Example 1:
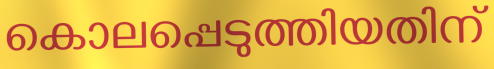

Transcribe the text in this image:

കൊലപ്പെടുത്തിയതിന്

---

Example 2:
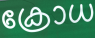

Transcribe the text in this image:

ക്രോധ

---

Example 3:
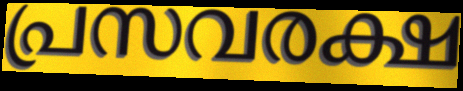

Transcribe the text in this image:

പ്രസവരക്ഷ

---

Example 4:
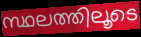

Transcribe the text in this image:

സ്ഥലത്തിലൂടെ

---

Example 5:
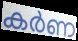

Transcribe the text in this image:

കർണ